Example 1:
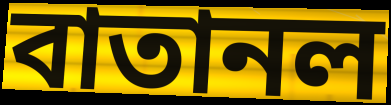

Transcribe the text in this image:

বাতানল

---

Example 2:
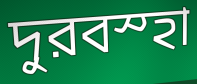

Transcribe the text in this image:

দুরবস্হা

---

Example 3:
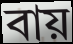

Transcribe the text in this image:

বায়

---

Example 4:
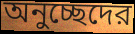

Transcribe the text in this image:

অনুচ্ছেদের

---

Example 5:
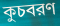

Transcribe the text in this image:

কুচবরণ